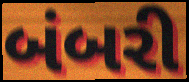
બંબરી